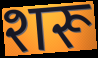
शरू